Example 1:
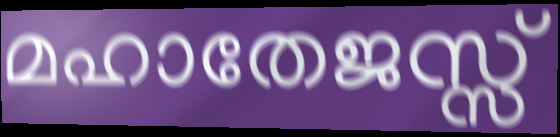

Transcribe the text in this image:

മഹാതേജസ്സ്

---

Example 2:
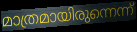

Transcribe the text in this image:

മാത്രമായിരുന്നെന്ന്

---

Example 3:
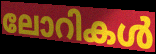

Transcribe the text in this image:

ലോറികൾ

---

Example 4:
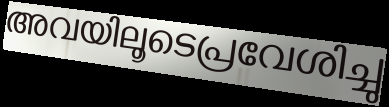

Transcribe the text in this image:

അവയിലൂടെപ്രവേശിച്ചു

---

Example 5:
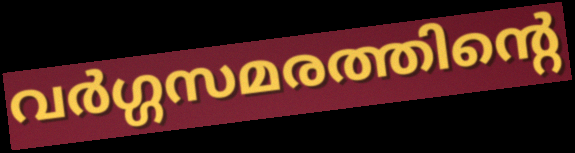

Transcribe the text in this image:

വർഗ്ഗസമരത്തിന്റെ